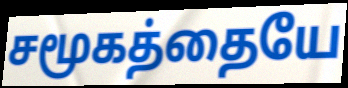
சமூகத்தையே